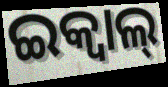
ଇକ୍ବାଲ୍